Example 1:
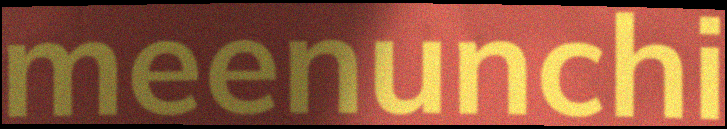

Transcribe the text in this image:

meenunchi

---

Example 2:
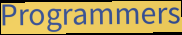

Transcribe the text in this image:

Programmers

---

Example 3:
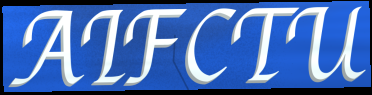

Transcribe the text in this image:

AIFCTU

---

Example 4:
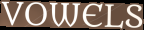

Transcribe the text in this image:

VOWELS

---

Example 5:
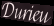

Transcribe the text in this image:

Durieu